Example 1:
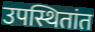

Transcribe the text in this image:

उपस्थितांत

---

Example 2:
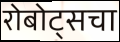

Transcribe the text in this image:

रोबोट्सचा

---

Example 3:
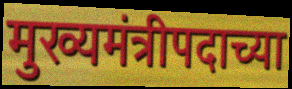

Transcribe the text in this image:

मुख्यमंत्रीपदाच्या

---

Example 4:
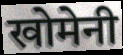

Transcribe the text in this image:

खोमेनी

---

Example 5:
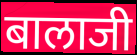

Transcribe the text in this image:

बालाजी